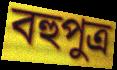
বহুপুত্র